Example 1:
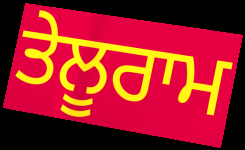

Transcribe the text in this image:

ਤੇਲੂਰਾਮ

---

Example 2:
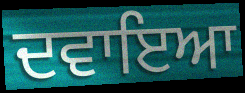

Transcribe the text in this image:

ਦਵਾਇਆ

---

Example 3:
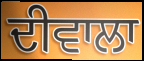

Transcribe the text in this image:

ਦੀਵਾਲਾ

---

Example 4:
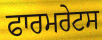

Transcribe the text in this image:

ਫਾਰਮਰੇਟਸ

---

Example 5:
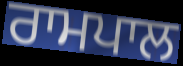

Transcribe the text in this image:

ਰਾਮਪਾਲ